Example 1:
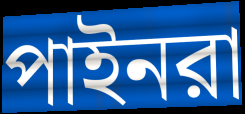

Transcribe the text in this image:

পাইনরা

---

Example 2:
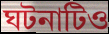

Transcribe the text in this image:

ঘটনাটিও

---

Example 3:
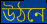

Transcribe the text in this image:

উঠনে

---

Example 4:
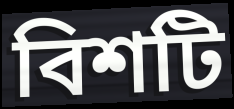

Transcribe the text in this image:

বিশটি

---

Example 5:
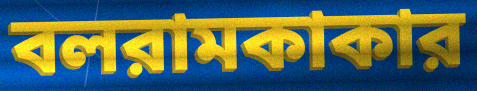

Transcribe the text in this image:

বলরামকাকার